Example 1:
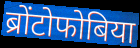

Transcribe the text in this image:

ब्रोंटोफोबिया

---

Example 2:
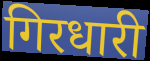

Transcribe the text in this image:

गिरधारी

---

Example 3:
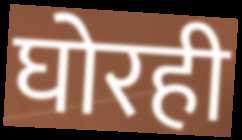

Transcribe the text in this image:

घोरही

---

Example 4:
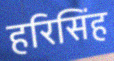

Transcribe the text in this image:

हरिसिंह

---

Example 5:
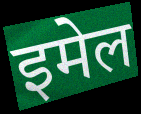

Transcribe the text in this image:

इमेल